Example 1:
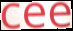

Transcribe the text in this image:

cee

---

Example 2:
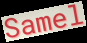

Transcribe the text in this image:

Samel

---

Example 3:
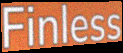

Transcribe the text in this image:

Finless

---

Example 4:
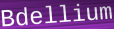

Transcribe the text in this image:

Bdellium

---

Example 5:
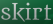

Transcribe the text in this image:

skirt